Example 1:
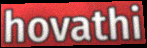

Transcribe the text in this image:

hovathi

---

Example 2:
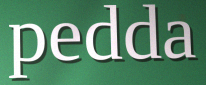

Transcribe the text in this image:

pedda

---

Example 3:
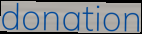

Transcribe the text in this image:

donation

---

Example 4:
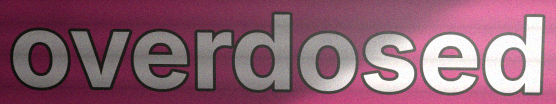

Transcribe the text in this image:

overdosed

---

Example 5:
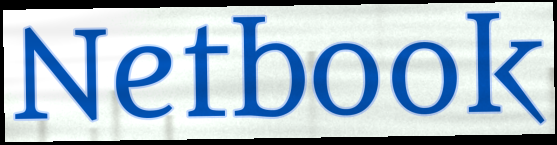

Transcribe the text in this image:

Netbook